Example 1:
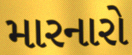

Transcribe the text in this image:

મારનારો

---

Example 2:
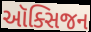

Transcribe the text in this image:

ઑક્સિજન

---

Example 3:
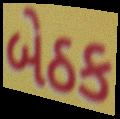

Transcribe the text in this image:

બેઠક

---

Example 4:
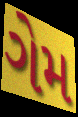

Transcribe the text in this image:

ગેમ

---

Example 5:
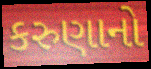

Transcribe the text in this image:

કરુણાનો